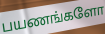
பயணங்களோ